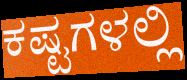
ಕಷ್ಟಗಳಲ್ಲಿ